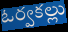
ఓర్వకల్లు